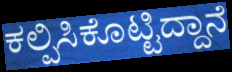
ಕಲ್ಪಿಸಿಕೊಟ್ಟಿದ್ದಾನೆ